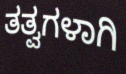
ತತ್ವಗಳಾಗಿ